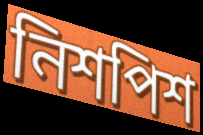
নিশপিশ